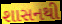
શાસનથી